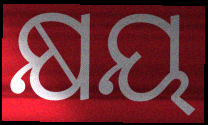
କ୍ଷୟ